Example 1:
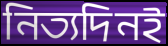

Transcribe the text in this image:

নিত্যদিনই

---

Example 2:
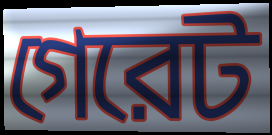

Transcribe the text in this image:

গেরেট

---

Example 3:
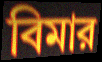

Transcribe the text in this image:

বিমার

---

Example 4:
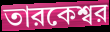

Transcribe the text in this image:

তারকেশ্বর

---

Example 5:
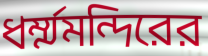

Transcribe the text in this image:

ধর্ম্মমন্দিরের